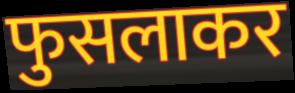
फुसलाकर